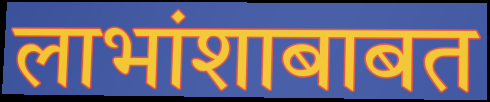
लाभांशाबाबत